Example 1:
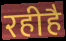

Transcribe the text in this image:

रहीहै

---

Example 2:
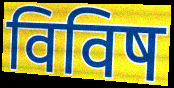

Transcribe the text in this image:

विविष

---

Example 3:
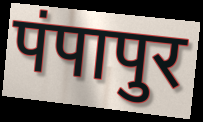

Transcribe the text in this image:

पंपापुर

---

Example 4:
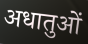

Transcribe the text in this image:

अधातुओं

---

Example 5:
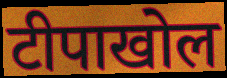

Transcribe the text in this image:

टीपाखोल